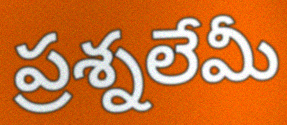
ప్రశ్నలేమీ